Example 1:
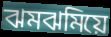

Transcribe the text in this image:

ঝমঝমিয়ে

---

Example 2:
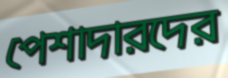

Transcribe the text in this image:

পেশাদারদের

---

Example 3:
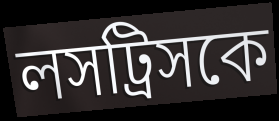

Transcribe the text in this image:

লসট্রিসকে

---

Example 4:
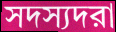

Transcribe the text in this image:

সদস্যদরা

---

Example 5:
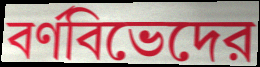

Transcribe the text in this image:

বর্ণবিভেদের